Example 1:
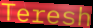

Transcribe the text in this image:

Teresh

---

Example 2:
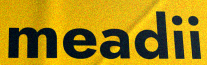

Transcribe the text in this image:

meadii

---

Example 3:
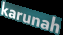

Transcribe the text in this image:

karunah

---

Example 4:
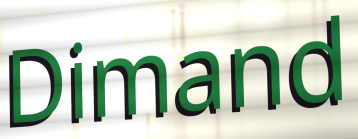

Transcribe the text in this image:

Dimand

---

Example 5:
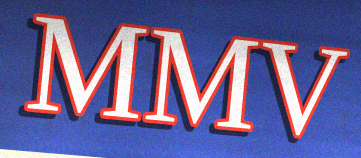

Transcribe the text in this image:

MMV